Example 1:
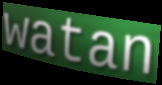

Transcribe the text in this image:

watan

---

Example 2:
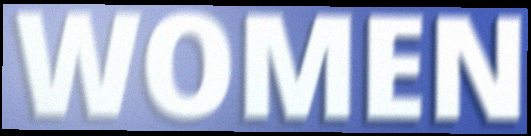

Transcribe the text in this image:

WOMEN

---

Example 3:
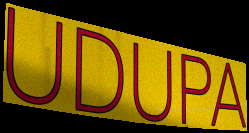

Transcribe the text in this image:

UDUPA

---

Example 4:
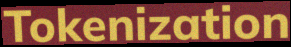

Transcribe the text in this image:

Tokenization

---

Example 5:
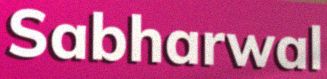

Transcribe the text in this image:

Sabharwal